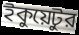
ইকুয়েটুর